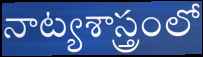
నాట్యశాస్త్రంలో